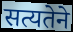
सत्यतेने